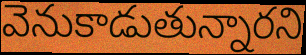
వెనుకాడుతున్నారని